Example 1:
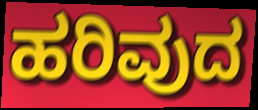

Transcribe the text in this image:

ಹರಿವುದ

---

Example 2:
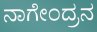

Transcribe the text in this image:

ನಾಗೇಂದ್ರನ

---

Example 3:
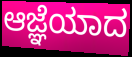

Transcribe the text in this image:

ಆಜ್ಞೆಯಾದ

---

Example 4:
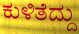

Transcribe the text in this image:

ಕುಳಿತೆದ್ದು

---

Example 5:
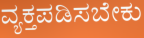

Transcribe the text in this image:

ವ್ಯಕ್ತಪಡಿಸಬೇಕು